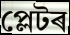
প্লেটৰ